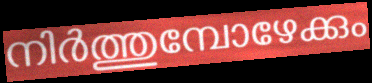
നിർത്തുമ്പോഴേക്കും